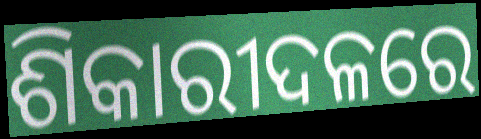
ଶିକାରୀଦଳରେ